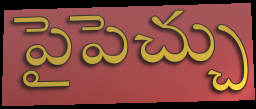
పైపెచ్చు